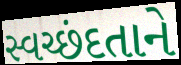
સ્વચ્છંદતાને